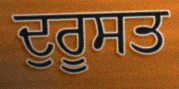
ਦੁਰੂਸਤ